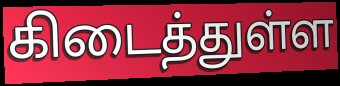
கிடைத்துள்ள